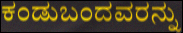
ಕಂಡುಬಂದವರನ್ನು